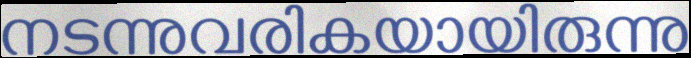
നടന്നുവരികയായിരുന്നു